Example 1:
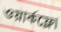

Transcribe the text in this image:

ওয়ার্কফ্লো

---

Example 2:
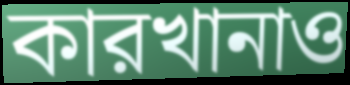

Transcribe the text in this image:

কারখানাও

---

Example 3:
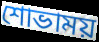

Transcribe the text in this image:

শোভাময়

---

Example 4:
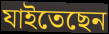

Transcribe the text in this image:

যাইতেছেন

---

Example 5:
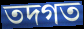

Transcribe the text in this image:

তদগত